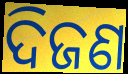
ଦିଜଣ